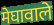
मेघावाले